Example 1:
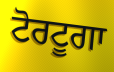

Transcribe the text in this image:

ਟੋਰਟੂਗਾ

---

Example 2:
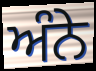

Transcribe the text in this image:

ਅੰਨੇ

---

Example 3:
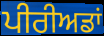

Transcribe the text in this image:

ਪੀਰੀਅਡਾਂ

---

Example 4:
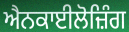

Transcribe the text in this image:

ਐਨਕਾਈਲੋਜ਼ਿੰਗ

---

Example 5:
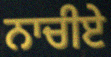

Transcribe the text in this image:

ਨਾਚੀਏ